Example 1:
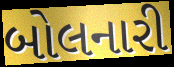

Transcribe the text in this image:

બોલનારી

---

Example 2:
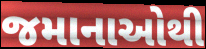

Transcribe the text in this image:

જમાનાઓથી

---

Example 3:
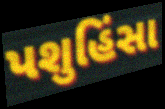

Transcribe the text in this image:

પશુહિંસા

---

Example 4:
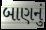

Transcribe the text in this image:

બાણનું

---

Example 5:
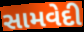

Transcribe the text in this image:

સામવેદી